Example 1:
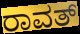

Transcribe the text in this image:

ರಾವತ್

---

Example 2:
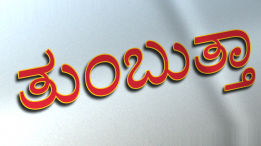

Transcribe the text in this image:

ತುಂಬುತ್ತಾ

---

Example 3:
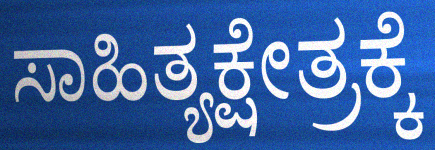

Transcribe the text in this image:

ಸಾಹಿತ್ಯಕ್ಷೇತ್ರಕ್ಕೆ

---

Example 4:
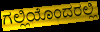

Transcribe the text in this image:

ಗಲ್ಲಿಯೊಂದರಲ್ಲಿ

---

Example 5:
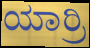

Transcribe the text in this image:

ಯಾರ್ರಿ